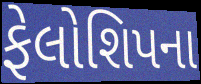
ફેલોશિપના